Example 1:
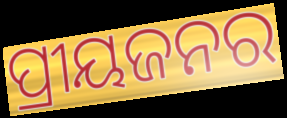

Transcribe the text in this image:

ପ୍ରୀୟଜନର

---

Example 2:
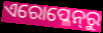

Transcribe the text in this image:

ଏରୋପ୍ଳେନ୍‍ରୁ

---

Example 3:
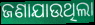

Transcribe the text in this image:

ଜଣାଯାଉଥିଲା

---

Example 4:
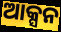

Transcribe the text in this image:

ଆକ୍ସନ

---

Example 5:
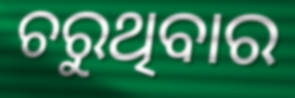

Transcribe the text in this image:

ଚରୁଥିବାର